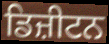
ਡਿਜ਼ੀਟਨ